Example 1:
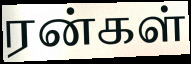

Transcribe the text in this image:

ரன்கள்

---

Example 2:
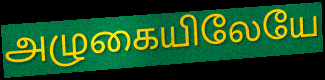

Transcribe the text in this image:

அழுகையிலேயே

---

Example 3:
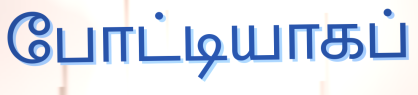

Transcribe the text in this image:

போட்டியாகப்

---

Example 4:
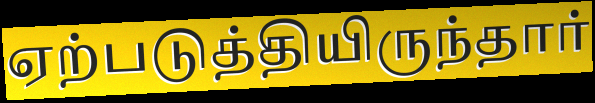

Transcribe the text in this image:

ஏற்படுத்தியிருந்தார்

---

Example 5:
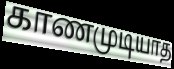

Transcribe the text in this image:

காணமுடியாத